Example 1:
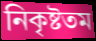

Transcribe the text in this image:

নিকৃষ্টতম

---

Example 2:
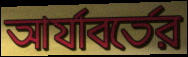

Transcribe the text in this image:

আর্যাবর্তের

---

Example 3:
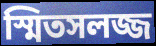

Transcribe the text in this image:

স্মিতসলজ্জ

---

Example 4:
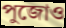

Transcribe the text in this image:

পুজোও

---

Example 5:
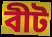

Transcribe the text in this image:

বীট